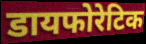
डायफोरेटिक